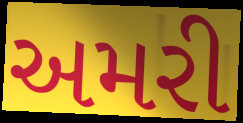
અમરી